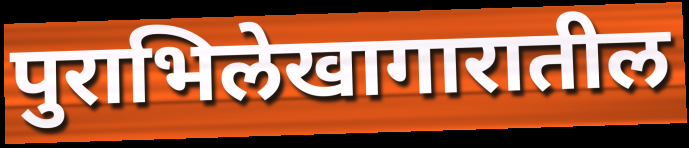
पुराभिलेखागारातील